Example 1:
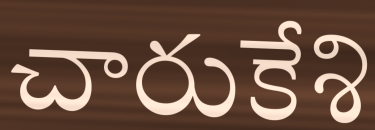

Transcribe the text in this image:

చారుకేశి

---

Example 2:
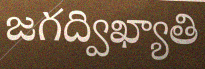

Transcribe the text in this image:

జగద్విఖ్యాతి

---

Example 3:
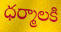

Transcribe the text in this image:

ధర్మాలకి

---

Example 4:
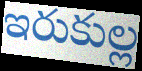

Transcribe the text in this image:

ఇరుకుల్ల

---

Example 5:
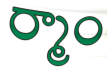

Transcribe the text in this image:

ర్మాం